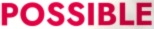
POSSIBLE